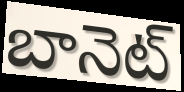
బానెట్